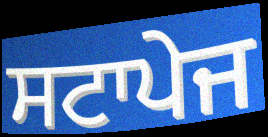
ਸਟਾਪੇਜ